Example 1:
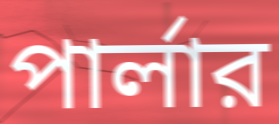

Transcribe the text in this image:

পার্লার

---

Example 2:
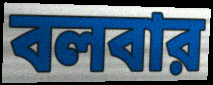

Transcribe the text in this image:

বলবার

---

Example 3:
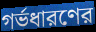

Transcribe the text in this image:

গর্ভধারণের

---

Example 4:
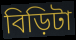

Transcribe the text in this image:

বিড়িটা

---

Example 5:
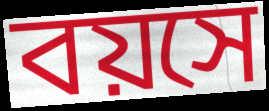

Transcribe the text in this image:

বয়সে